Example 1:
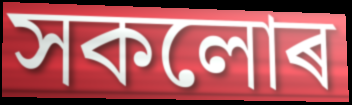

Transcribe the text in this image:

সকলোৰ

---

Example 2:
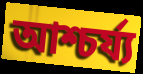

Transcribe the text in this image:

আশ্চৰ্য্য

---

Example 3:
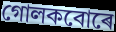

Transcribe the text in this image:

গোলকবোৰে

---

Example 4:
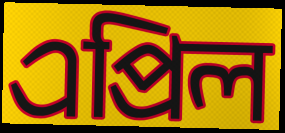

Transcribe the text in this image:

এপ্ৰিল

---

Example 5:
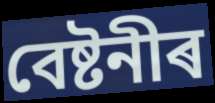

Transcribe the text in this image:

বেষ্টনীৰ